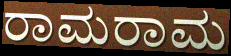
ರಾಮರಾಮ